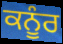
ਕਨੂੰਰ